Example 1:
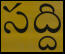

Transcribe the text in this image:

సద్ది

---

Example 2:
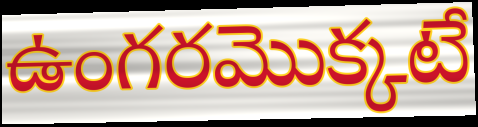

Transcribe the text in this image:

ఉంగరమొక్కటే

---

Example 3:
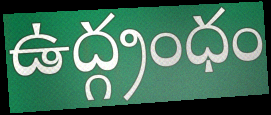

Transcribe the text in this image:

ఉద్గ్రంధం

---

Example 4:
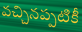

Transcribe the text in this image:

వచ్చినప్పటికీ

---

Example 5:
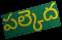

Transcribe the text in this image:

పల్కెద